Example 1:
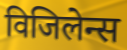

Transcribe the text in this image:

विजिलेन्स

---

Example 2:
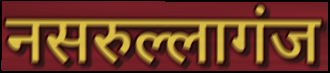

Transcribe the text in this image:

नसरुल्लागंज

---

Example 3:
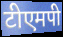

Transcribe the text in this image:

टीएमपी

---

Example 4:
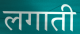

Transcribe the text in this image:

लगाती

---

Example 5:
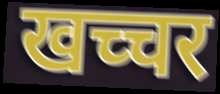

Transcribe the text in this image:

खच्चर